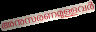
അനുസരണമുള്ളവർ